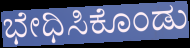
ಭೇಧಿಸಿಕೊಂಡು